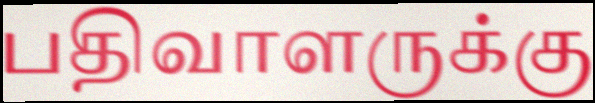
பதிவாளருக்கு